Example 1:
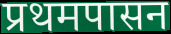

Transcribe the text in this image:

प्रथमपासन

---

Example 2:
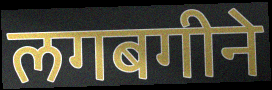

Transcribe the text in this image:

लगबगीने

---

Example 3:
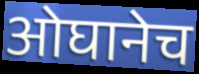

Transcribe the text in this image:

ओघानेच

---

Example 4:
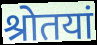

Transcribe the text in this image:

श्रोतयां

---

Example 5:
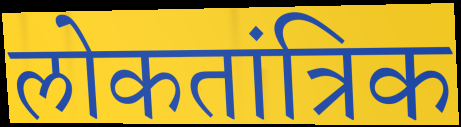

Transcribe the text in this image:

लोकतांत्रिक